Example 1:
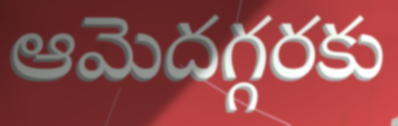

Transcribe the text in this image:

ఆమెదగ్గరకు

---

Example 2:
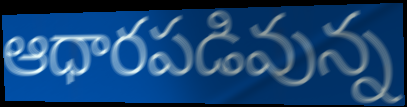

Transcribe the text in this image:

ఆధారపడివున్న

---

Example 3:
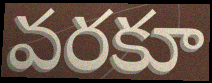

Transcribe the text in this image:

వరకూ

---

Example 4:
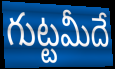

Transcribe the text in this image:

గుట్టమీదే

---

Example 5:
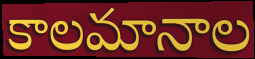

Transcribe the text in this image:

కాలమానాల